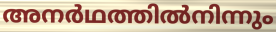
അനർഥത്തിൽനിന്നും